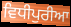
ਵਿਧੀਪੁਰੀਆ